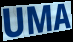
UMA